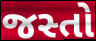
જસ્તો